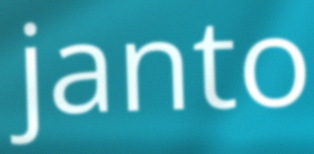
janto